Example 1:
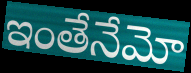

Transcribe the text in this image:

ఇంతేనేమో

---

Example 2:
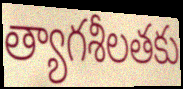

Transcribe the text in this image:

త్యాగశీలతకు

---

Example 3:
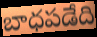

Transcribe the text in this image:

బాధపడేది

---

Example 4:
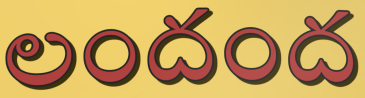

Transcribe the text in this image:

లందంద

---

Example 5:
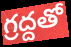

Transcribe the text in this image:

గ్రద్దతో